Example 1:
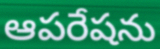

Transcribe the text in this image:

ఆపరేషను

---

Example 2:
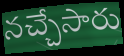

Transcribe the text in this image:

నచ్చేసారు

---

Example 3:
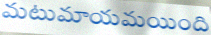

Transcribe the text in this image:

మటుమాయమయింది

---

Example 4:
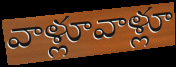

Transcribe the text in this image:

వాళ్లూవాళ్లూ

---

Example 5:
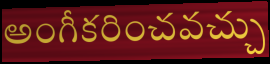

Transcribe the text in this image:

అంగీకరించవచ్చు